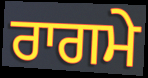
ਰਾਗਮੇ